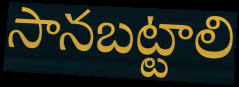
సానబట్టాలి